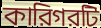
কারিগরটি